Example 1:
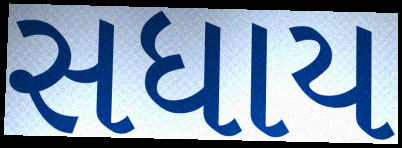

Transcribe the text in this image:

સધાય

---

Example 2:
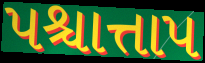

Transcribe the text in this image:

પશ્ચાત્તાપ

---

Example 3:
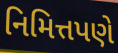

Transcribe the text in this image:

નિમિત્તપણે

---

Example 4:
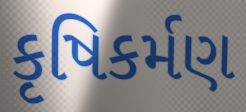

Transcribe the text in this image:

કૃષિકર્મણ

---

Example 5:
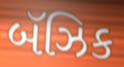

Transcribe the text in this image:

બૅઝિક